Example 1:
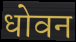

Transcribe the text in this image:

धोवन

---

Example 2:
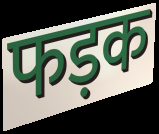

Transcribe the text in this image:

फड़क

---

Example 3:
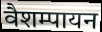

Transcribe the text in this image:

वैशम्पायन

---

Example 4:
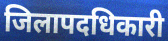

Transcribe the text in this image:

जिलापदधिकारी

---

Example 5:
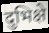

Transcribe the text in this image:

दुभिक्षे